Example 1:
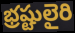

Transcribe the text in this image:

భ్రష్టులైరి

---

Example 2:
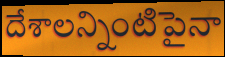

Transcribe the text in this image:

దేశాలన్నింటిపైనా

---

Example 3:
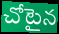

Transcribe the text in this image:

చోటైన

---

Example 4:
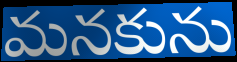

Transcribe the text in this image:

మనకును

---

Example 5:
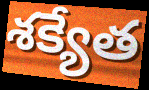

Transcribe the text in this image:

శక్యేత